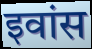
इवांस